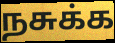
நசுக்க